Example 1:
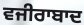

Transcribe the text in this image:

ਵਜੀਰਾਬਾਦ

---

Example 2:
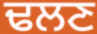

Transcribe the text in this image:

ਢਲਣ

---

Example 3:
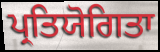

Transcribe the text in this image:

ਪ੍ਰਤਿਯੋਗਿਤਾ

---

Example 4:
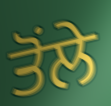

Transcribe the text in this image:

ਤੋਂਲੇ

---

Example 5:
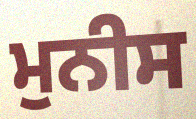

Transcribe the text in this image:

ਮੁਨੀਸ